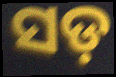
ସଡ଼